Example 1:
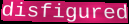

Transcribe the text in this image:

disfigured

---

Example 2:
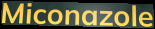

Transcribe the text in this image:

Miconazole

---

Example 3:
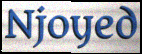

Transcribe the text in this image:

Njoyed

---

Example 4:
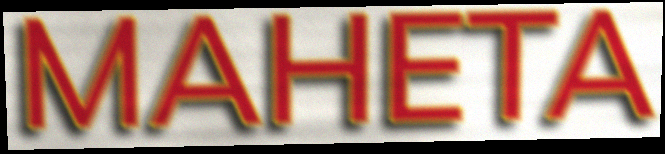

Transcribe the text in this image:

MAHETA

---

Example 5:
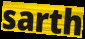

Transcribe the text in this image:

sarth